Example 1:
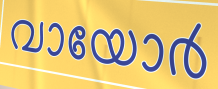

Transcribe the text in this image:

വായോർ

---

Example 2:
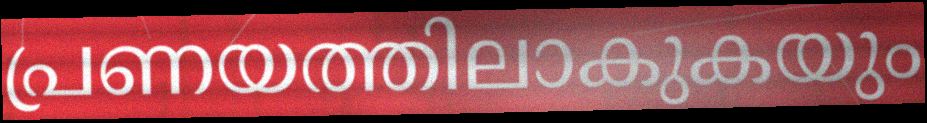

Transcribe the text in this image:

പ്രണയത്തിലാകുകയും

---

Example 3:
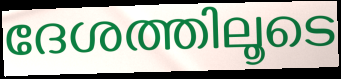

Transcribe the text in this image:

ദേശത്തിലൂടെ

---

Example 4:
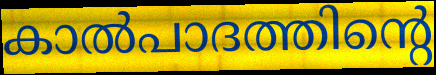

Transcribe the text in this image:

കാൽപാദത്തിന്റെ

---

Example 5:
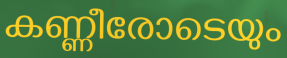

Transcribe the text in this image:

കണ്ണീരോടെയും